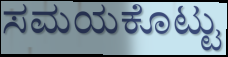
ಸಮಯಕೊಟ್ಟು